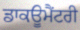
ਡਾਕਊਮੈਂਟਰੀ